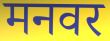
मनवर